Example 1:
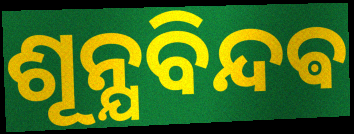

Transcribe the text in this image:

ଶୂନ୍ଯବିନ୍ଦଵ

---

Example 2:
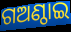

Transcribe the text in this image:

ଗଅଣ୍ଠାଇ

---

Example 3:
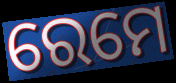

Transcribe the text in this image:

ରେମେ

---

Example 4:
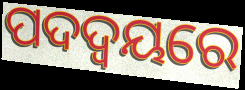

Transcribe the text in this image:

ପଦଦ୍ୱୟରେ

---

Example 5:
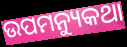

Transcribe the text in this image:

ଉପମନ୍ୟୁକଥା